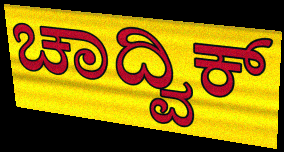
ಚಾದ್ವಿಕ್